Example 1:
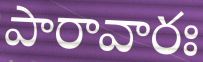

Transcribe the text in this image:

పారావారః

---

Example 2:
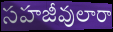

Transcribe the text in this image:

సహజీవులారా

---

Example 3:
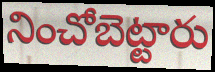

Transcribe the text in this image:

నించోబెట్టారు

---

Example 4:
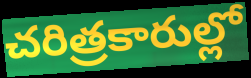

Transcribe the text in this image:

చరిత్రకారుల్లో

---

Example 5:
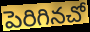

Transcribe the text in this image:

పెరిగినచో